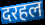
दरहल